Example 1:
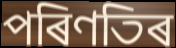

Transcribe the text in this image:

পৰিণতিৰ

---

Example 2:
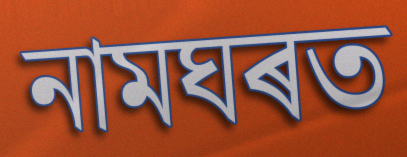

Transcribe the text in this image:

নামঘৰত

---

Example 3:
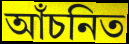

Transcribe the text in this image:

আঁচনিত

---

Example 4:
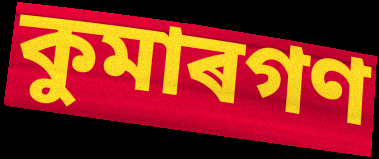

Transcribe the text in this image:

কুমাৰগণ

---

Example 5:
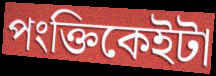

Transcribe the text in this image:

পংক্তিকেইটা